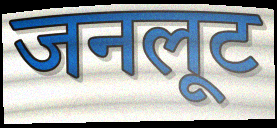
जनलूट